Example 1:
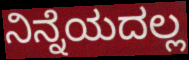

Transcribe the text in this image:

ನಿನ್ನೆಯದಲ್ಲ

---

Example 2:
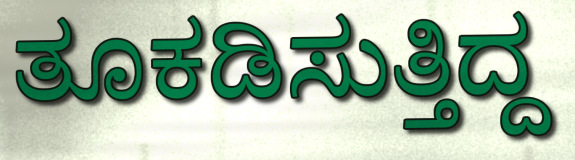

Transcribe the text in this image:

ತೂಕಡಿಸುತ್ತಿದ್ದ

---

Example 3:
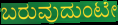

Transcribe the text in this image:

ಬರುವುದುಂಟೇ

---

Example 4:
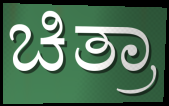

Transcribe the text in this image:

ಚಿತ್ರಾ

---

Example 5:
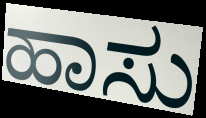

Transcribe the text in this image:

ಹಾಸು